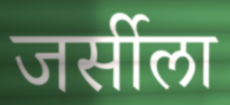
जर्सीला